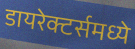
डायरेक्टर्समध्ये